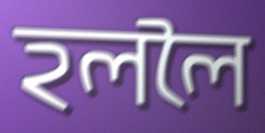
হললৈ